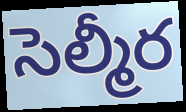
సెల్మీర